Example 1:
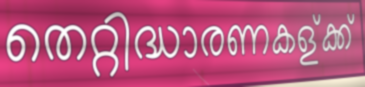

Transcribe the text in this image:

തെറ്റിദ്ധാരണകള്ക്ക്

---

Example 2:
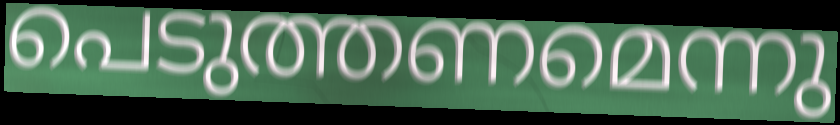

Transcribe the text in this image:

പെടുത്തണമെന്നു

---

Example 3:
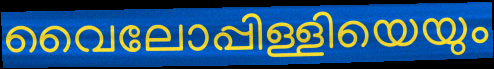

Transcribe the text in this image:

വൈലോപ്പിള്ളിയെയും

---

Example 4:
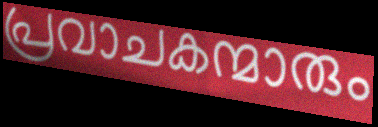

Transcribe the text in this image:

പ്രവാചകന്മാരും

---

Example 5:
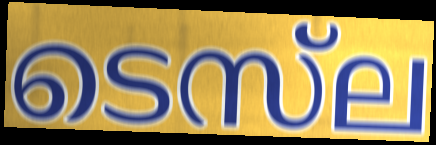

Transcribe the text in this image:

ടെസ്‌ല